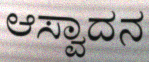
ಆಸ್ವಾದನ